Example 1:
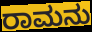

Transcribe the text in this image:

ರಾಮನು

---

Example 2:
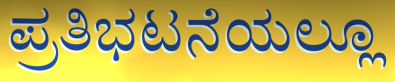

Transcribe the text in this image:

ಪ್ರತಿಭಟನೆಯಲ್ಲೂ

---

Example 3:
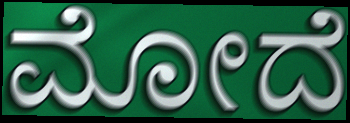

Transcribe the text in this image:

ಮೋದೆ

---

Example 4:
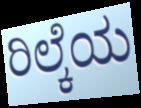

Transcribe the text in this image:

ರಿಲ್ಕೆಯ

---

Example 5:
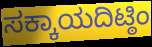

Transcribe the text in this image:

ಸಕ್ಕಾಯದಿಟ್ಠಿಂ